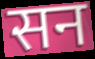
सन